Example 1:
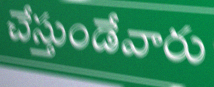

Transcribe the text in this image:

చేస్తుండేవారు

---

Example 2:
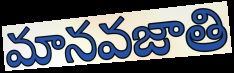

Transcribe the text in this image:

మానవజాతి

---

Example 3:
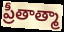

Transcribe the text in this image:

ప్రీతాత్మా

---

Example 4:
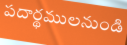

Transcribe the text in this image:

పదార్థములనుండి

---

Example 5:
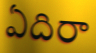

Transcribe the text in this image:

ఏదిరా